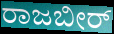
ರಾಜಬೀರ್